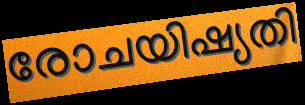
രോചയിഷ്യതി